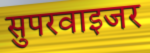
सुपरवाइजर